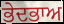
ਭੇਦਭਾਅ